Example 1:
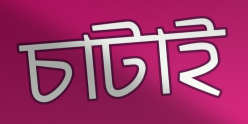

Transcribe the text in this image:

চাটাই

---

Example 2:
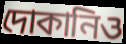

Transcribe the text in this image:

দোকানিও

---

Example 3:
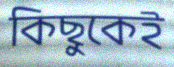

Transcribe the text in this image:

কিছুকেই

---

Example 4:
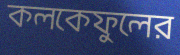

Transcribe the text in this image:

কলকেফুলের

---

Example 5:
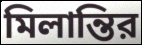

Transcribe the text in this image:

মিলান্তির